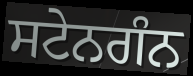
ਸਟੇਨਗੰਨ